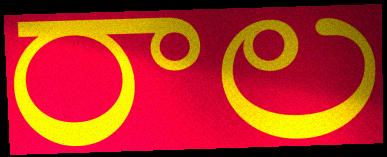
రాల